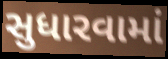
સુધારવામાં